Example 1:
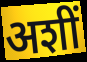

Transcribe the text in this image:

अशीं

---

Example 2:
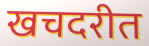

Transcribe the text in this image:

खचदरीत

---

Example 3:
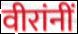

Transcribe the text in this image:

वीरांनीं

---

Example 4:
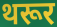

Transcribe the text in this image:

थरूर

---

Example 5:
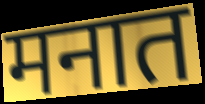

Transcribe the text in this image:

मनात